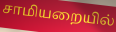
சாமியறையில்